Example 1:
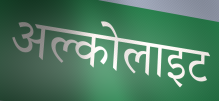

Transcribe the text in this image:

अल्कोलाइट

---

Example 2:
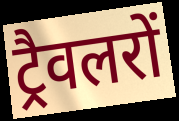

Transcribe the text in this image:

ट्रैवलरों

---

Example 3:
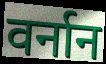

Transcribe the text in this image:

वर्नान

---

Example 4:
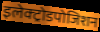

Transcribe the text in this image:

इलेक्ट्रोडपोजिशन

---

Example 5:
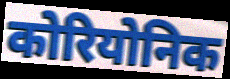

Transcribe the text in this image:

कोरियोनिक